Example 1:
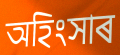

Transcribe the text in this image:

অহিংসাৰ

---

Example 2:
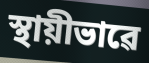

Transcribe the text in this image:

স্থায়ীভাৱে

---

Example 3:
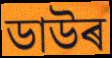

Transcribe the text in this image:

ডাউৰ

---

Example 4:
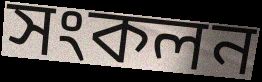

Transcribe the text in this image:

সংকলন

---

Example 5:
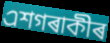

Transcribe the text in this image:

এশগৰাকীৰ